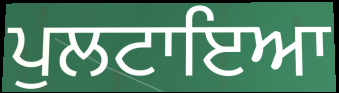
ਪੁਲਟਾਇਆ